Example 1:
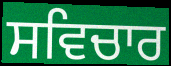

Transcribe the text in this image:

ਸਵਿਚਾਰ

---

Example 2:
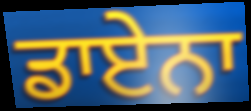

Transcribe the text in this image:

ਡਾਏਨਾ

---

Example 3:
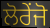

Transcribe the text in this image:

ਲੋਰੇਂਜੋ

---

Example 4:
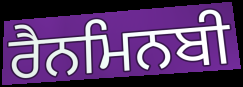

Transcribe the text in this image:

ਰੈਨਮਿਨਬੀ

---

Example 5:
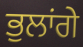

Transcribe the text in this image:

ਭੁਲਾਂਗੇ